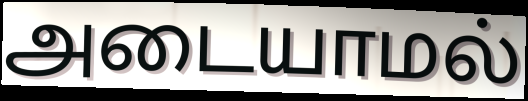
அடையாமல்